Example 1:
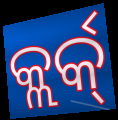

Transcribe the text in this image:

କ୍ଲର୍କ୍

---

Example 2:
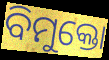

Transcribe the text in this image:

ବିମୁକ୍ତୋ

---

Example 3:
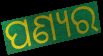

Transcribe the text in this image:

ପଣ୍ୟର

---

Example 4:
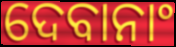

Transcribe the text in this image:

ଦେବାନାଂ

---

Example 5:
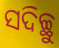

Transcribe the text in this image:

ସଦିଚ୍ଛୁ